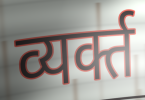
व्यर्क्त